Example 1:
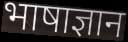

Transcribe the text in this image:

भाषाज्ञान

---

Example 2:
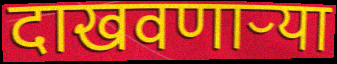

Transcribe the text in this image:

दाखवणाऱ्या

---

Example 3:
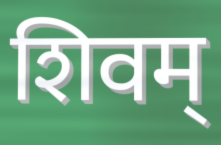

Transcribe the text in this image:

शिवम्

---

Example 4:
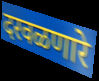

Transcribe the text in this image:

दरवळणारे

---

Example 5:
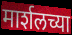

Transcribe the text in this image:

मार्शलच्या